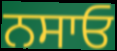
ਨਸਾਓ